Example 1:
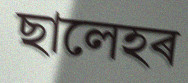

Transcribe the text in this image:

ছালেহৰ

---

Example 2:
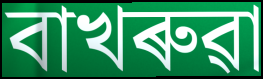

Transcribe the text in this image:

বাখৰুৱা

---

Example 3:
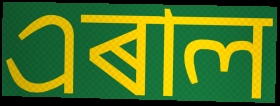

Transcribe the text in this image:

এৰাল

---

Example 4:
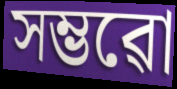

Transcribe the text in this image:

সম্ভৱো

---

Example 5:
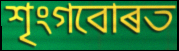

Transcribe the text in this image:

শৃংগবোৰত